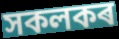
সকলকৰ